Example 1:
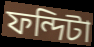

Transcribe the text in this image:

ফন্দিটা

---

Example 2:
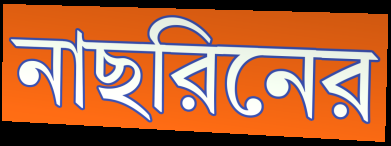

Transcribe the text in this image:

নাছরিনের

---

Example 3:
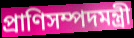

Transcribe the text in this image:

প্রাণিসম্পদমন্ত্রী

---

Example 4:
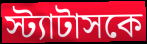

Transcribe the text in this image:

স্ট্যাটাসকে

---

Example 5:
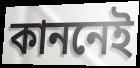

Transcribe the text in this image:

কাননেই